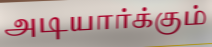
அடியார்க்கும்